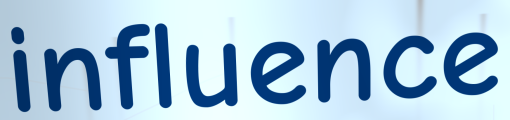
influence